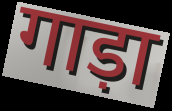
गाड़ा